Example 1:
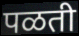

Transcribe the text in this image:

पळती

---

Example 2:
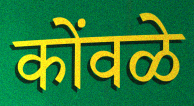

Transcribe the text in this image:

कोंवळे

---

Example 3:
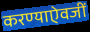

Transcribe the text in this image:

करण्याऐवजीं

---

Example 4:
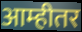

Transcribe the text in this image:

आम्हीतर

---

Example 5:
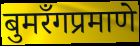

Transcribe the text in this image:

बुमरँगप्रमाणे